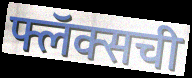
फ्लॅक्सची